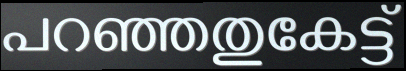
പറഞ്ഞതുകേട്ട്